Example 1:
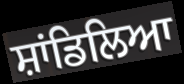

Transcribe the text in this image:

ਸ਼ਾਂਡਿਲਿਆ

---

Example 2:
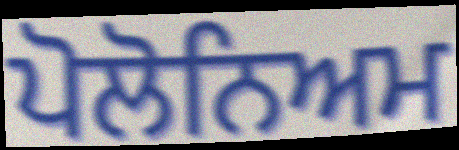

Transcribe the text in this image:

ਪੋਲੋਨਿਅਮ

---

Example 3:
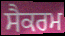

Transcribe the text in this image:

ਸੈਕਰਮ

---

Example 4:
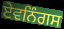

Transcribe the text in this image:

ਏਵਨਿੰਗਸ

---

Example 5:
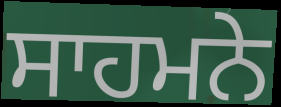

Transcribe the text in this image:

ਸਾਹਮਨੇ